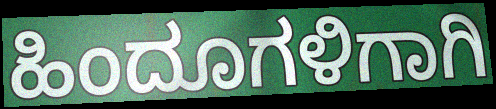
ಹಿಂದೂಗಳಿಗಾಗಿ